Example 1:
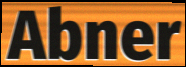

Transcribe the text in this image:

Abner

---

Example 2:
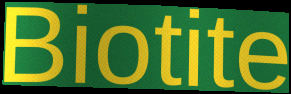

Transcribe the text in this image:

Biotite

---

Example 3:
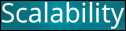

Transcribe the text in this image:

Scalability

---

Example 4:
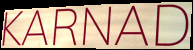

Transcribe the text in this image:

KARNAD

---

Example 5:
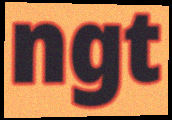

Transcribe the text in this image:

ngt